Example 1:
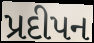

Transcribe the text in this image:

પ્રદીપન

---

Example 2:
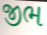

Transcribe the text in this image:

જીભ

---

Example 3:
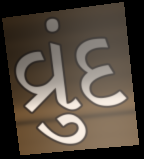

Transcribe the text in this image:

વ્રુંદ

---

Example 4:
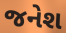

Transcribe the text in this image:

જનેશ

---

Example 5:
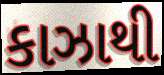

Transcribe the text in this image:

કાઝાથી